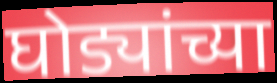
घोड्यांच्या